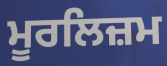
ਮੂਰਲਿਜ਼ਮ